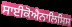
ਸਾਈਕੋਐਨਾਲਿਸਿਸ